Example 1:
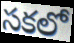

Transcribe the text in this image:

సకలో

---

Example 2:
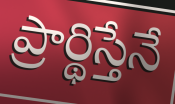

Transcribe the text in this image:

ప్రార్థిస్తేనే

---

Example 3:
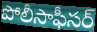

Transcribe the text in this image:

పోలీసాఫీసర్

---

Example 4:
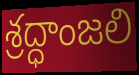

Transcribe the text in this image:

శ్రద్ధాంజలి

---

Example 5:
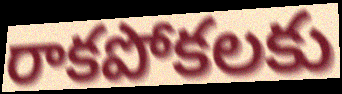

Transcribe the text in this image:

రాకపోకలకు